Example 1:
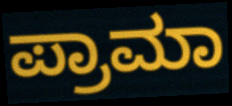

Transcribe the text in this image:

ಪ್ರಾಮಾ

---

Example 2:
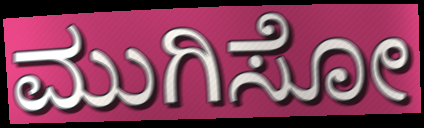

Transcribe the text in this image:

ಮುಗಿಸೋ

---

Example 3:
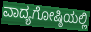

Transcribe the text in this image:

ವಾದ್ಯಗೋಷ್ಠಿಯಲ್ಲಿ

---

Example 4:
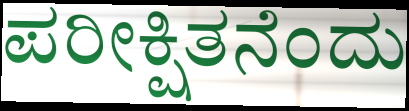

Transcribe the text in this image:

ಪರೀಕ್ಷಿತನೆಂದು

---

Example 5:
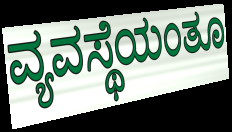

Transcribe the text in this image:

ವ್ಯವಸ್ಥೆಯಂತೂ